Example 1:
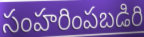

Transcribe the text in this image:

సంహరింపబడిరి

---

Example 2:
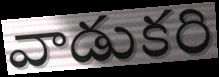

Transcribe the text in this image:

వాడుకరి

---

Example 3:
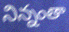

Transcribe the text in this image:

నిన్నంతా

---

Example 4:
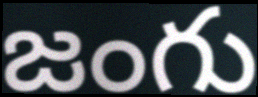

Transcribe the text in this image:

జంగు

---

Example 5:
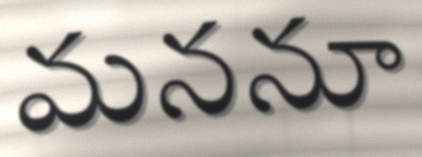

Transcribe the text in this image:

మననూ